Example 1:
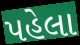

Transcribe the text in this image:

પહેલા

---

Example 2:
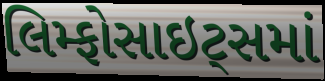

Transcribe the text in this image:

લિમ્ફોસાઇટ્સમાં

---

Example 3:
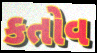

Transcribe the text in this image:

કતોવ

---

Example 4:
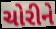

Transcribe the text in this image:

ચોરીને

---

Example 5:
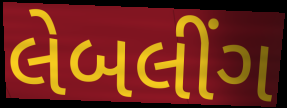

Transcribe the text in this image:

લેબલીંગ